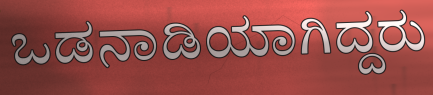
ಒಡನಾಡಿಯಾಗಿದ್ದರು